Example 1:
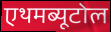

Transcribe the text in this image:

एथमब्यूटोल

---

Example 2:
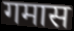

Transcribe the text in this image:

गमास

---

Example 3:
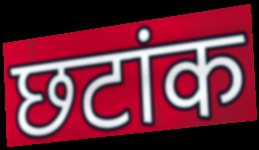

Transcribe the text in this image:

छटांक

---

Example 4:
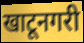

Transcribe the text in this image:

खाटूनगरी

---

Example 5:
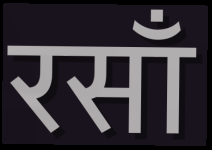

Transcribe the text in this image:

रसाँ